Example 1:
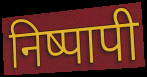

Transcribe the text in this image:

निष्पापी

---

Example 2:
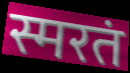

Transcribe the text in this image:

स्मरतं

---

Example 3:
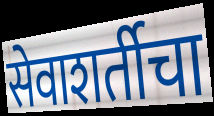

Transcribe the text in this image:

सेवाशर्तीचा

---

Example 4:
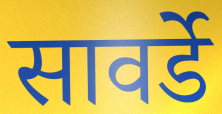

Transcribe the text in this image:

सावर्डे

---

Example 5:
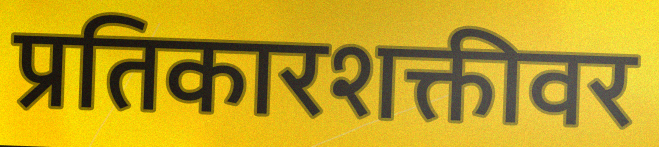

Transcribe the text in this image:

प्रतिकारशक्तीवर